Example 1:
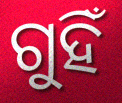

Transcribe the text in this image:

ଗୁହିଁ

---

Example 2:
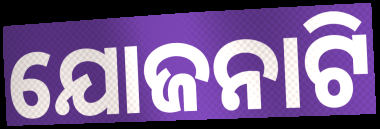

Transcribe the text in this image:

ଯୋଜନାଟି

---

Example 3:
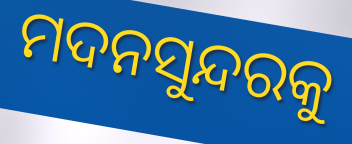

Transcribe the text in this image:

ମଦନସୁନ୍ଦରକୁ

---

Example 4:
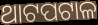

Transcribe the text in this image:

ଥାଟପଟାଳ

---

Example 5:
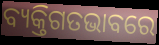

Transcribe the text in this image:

ବ୍ୟକ୍ତିଗତଭାବରେ